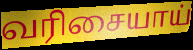
வரிசையாய்